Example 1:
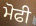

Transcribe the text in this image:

ਮੋਫੀ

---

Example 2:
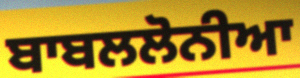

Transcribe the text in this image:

ਬਾਬਲਲੋਨੀਆ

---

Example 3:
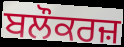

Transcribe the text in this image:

ਬਲੌਕਰਜ਼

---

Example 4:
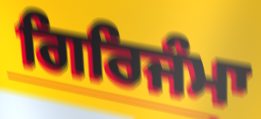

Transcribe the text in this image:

ਗਿਰਿਜੰਮਾ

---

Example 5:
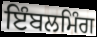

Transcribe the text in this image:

ਇੰਬਲਮਿੰਗ